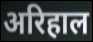
अरिहाल